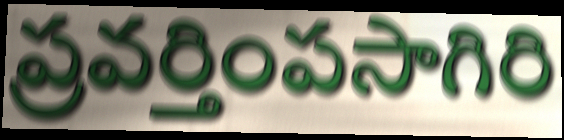
ప్రవర్తింపసాగిరి